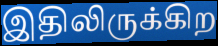
இதிலிருக்கிற